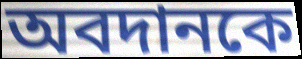
অবদানকে